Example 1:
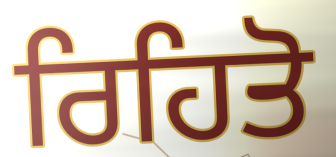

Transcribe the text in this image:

ਰਿਹਿਤੋ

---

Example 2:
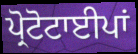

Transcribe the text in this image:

ਪ੍ਰੋਟੋਟਾਈਪਾਂ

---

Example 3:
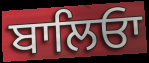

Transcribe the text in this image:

ਬਾਲਿਓਾ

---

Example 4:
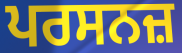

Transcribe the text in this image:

ਪਰਸਨਜ਼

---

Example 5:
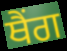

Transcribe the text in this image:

ਥੈਂਗ